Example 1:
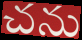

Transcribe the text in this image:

చను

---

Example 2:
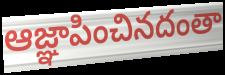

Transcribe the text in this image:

ఆజ్ఞాపించినదంతా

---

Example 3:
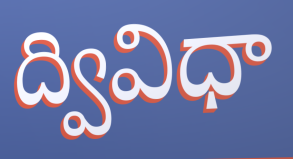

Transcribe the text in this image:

ద్వివిధా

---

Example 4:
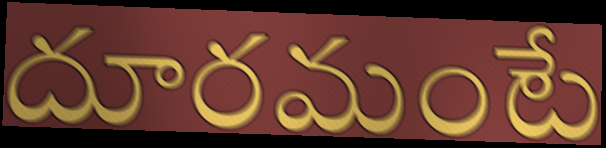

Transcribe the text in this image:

దూరమంటే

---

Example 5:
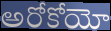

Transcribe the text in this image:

అరోకోయో